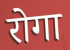
रोगा